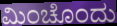
ಮಿಂಚೊಂದು